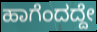
ಹಾಗೆಂದದ್ದೇ